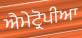
ਐਮੇਟ੍ਰੋਪੀਆ